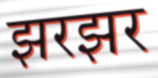
झरझर